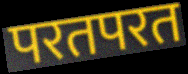
परतपरत